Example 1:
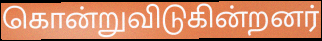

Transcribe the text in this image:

கொன்றுவிடுகின்றனர்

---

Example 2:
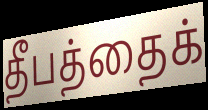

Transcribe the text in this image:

தீபத்தைக்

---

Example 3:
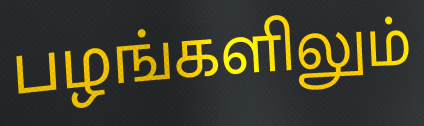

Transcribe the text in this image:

பழங்களிலும்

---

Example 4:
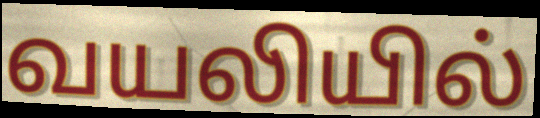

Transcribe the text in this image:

வயலியில்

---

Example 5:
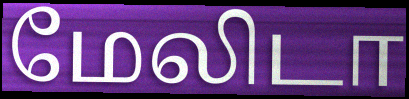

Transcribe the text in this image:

மேலிடா